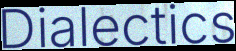
Dialectics